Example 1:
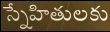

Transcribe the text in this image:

స్నేహితులకు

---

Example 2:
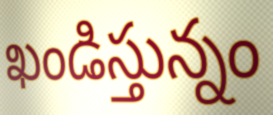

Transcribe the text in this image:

ఖండిస్తున్నం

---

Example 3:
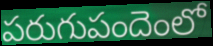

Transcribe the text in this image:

పరుగుపందెంలో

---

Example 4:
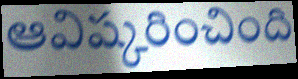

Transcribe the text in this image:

ఆవిష్కరించింది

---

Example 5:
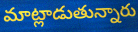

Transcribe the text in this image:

మాట్లాడుతున్నారు